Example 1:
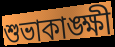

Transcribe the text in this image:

শুভাকাঙ্ক্ষী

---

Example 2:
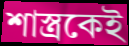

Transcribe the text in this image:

শাস্ত্রকেই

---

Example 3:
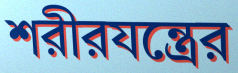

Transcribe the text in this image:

শরীরযন্ত্রের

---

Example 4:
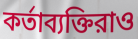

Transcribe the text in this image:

কর্তাব্যক্তিরাও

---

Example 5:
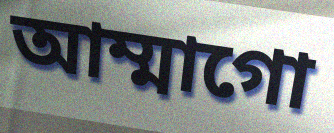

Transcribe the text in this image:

আম্মাগো